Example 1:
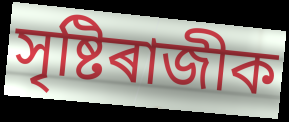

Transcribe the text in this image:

সৃষ্টিৰাজীক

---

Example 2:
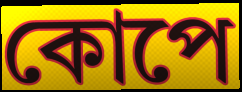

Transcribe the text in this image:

কোপে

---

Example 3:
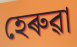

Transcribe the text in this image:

হেৰুৱা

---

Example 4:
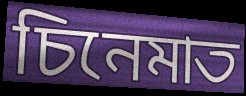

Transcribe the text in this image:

চিনেমাত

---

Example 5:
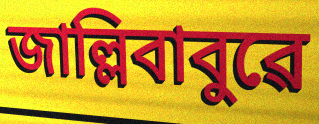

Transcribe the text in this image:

জাল্লিবাবুৱে